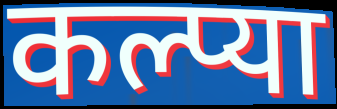
कल्प्या